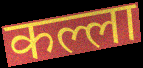
कल्ला